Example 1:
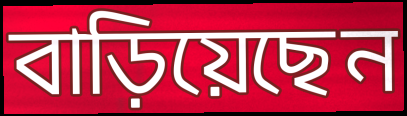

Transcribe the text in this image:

বাড়িয়েছেন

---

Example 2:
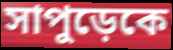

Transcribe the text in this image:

সাপুড়েকে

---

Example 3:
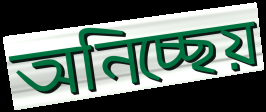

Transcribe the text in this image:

অনিচ্ছেয়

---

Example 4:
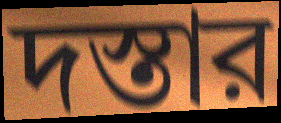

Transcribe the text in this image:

দস্তার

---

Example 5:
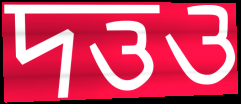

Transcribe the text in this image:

দত্তও